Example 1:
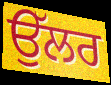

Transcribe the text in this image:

ਉੱਲਰ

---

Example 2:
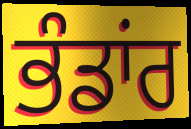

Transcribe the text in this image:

ਭੰਡਾਂਰ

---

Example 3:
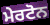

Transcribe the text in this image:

ਮੇਰਟੋਨ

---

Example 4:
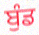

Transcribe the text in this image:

ਬੁੰਡ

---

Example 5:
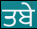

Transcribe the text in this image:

ਤਬੇ